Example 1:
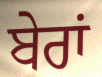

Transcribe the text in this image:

ਬੇਰਾਂ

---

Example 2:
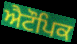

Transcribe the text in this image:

ਐਟੌਪਿਕ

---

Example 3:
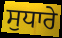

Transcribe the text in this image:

ਸੁਧਾਰੇ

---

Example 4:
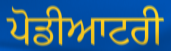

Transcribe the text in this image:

ਪੋਡੀਆਟਰੀ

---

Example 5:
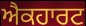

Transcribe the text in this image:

ਐਕਹਾਰਟ